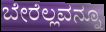
ಬೇರೆಲ್ಲವನ್ನೂ